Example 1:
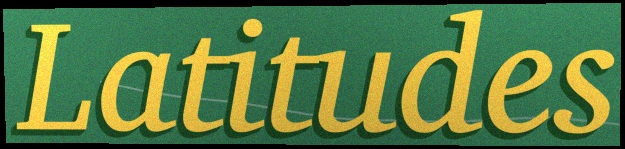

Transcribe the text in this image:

Latitudes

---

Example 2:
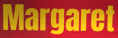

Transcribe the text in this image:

Margaret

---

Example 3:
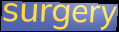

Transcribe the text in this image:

surgery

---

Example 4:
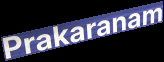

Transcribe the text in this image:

Prakaranam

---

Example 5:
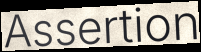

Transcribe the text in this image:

Assertion